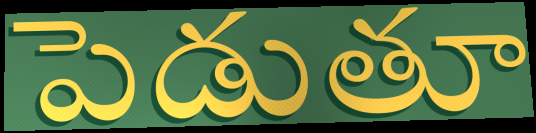
పెడుతూ